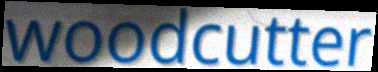
woodcutter